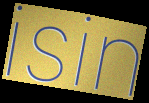
isin